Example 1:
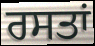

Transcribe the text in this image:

ਰਸਤਾਂ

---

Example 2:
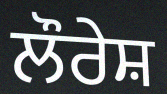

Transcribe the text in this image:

ਲੌਰੇਸ਼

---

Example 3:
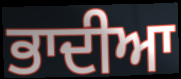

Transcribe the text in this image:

ਭਾਦੀਆ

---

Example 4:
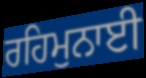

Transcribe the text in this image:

ਰਹਿਮੁਨਾਈ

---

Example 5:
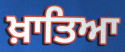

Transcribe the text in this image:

ਖ਼ਾਤਿਆ